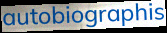
autobiographis